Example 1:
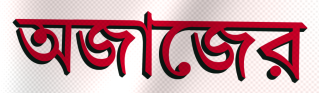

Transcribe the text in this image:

অজাজের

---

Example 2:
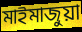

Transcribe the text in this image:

মাইমাজুয়া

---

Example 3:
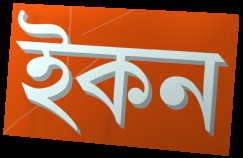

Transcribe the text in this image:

ইকন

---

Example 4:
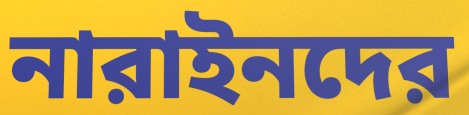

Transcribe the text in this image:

নারাইনদের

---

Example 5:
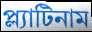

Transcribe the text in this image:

প্ল্যাটিনাম